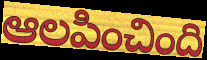
ఆలపించింది